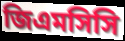
জিএমসিসি